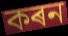
কৰন